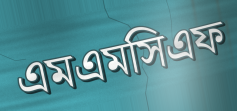
এমএমসিএফ